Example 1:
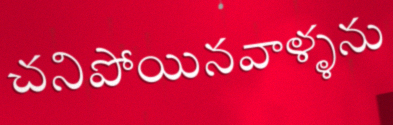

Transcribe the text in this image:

చనిపోయినవాళ్ళను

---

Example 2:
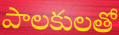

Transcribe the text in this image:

పాలకులతో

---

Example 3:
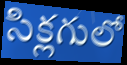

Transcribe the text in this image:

సిక్లగులో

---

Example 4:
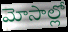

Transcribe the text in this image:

మోసాల్లో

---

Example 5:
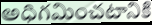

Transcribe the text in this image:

అధిగమించటానికి